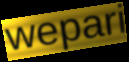
wepari